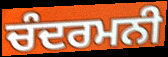
ਚੰਦਰਮਨੀ